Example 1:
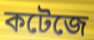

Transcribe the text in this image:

কটেজে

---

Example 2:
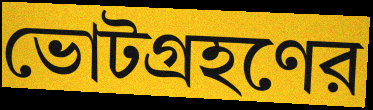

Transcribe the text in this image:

ভোটগ্রহণের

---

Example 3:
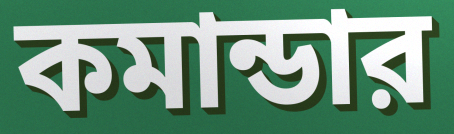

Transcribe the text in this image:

কমান্ডার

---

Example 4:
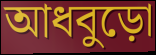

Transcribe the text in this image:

আধবুড়ো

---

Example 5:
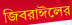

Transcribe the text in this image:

জিবরাঈলের